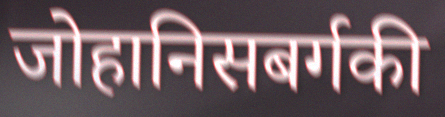
जोहानिसबर्गकी